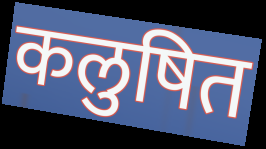
कलुषित